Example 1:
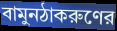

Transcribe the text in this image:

বামুনঠাকরুণের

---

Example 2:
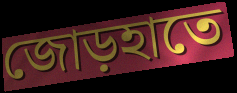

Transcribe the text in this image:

জোড়হাতে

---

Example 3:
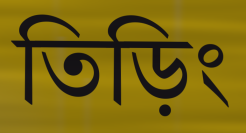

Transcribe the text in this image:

তিড়িং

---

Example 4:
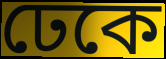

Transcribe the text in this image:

ঢেকে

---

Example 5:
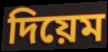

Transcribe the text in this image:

দিয়েম